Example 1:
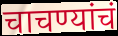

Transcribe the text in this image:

चाचण्यांचं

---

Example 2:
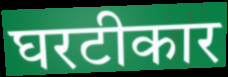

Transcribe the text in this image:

घरटीकार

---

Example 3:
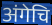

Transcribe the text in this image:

अंगेचि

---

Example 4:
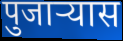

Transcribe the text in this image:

पुजाऱ्यास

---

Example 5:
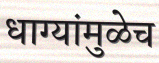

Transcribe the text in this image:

धाग्यांमुळेच